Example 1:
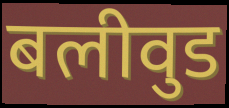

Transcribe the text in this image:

बलीवुड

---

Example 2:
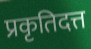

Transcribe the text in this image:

प्रकृतिदत्त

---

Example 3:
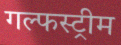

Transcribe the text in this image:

गल्फस्ट्रीम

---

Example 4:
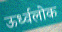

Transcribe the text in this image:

ऊर्ध्वलोक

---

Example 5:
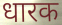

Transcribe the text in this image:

धारक